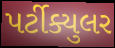
પર્ટીક્યુલર